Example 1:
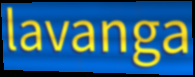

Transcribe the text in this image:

lavanga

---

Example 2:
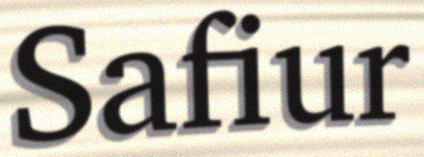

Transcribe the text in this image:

Safiur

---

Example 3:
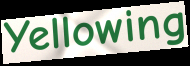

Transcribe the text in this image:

Yellowing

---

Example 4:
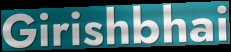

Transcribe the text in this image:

Girishbhai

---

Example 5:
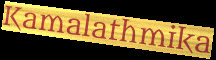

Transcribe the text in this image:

Kamalathmika